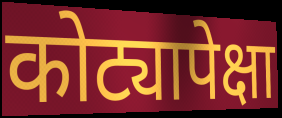
कोट्यापेक्षा